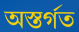
অস্তর্গত